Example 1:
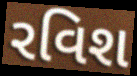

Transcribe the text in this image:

રવિશ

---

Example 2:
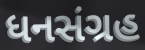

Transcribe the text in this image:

ધનસંગ્રહ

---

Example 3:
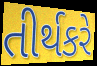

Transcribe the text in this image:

તીર્થકરે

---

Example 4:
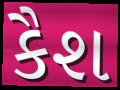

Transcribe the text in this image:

કૈશ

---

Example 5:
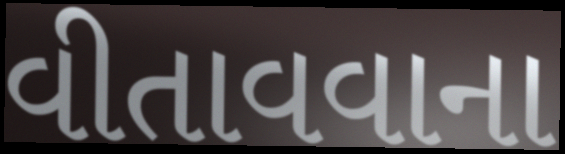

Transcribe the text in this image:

વીતાવવાના